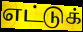
எட்டுக்